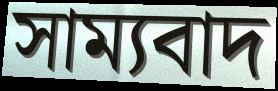
সাম্যবাদ